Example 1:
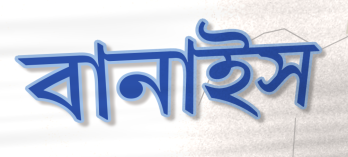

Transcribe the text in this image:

বানাইস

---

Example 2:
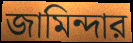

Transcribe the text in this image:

জামিন্দার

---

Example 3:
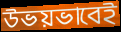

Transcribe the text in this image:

উভয়ভাবেই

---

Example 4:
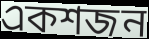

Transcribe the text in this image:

একশজন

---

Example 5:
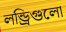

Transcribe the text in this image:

লন্ড্রিগুলো